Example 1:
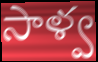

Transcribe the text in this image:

సాళ్వ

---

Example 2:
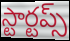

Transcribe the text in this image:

స్టార్టప్స్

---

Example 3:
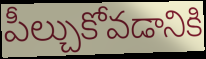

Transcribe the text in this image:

పీల్చుకోవడానికి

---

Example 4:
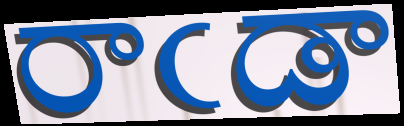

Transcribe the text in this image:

రాఁడా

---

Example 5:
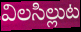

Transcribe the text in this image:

విలసిల్లుట